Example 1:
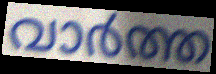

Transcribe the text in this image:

വാർത്ത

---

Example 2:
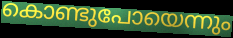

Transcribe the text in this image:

കൊണ്ടുപോയെന്നും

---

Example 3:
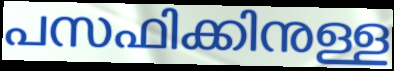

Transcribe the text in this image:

പസഫിക്കിനുള്ള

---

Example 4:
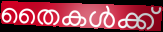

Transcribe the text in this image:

തൈകൾക്ക്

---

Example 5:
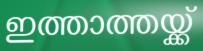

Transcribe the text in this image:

ഇത്താത്തയ്ക്ക്